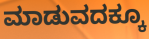
ಮಾಡುವದಕ್ಕೂ